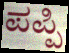
ಪಪ್ಪಿ